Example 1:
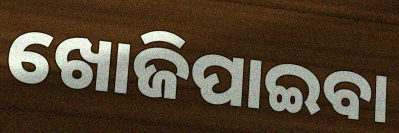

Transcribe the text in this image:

ଖୋଜିପାଇବା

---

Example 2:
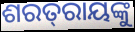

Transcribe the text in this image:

ଶରତ୍‌ରାୟଙ୍କୁ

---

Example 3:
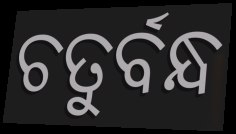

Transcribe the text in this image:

ଚତୁର୍ବନ୍ଧ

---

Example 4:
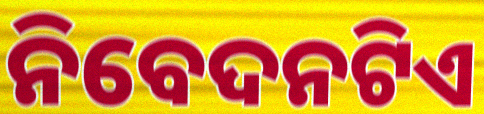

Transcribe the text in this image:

ନିବେଦନଟିଏ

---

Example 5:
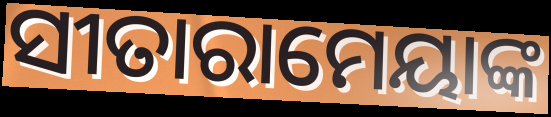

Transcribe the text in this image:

ସୀତାରାମେୟାଙ୍କ